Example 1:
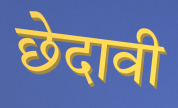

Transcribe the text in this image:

छेदावी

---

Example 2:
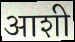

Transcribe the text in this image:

आशी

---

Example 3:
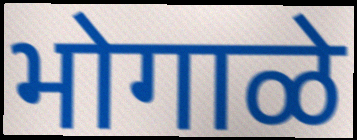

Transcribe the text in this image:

भोगाळे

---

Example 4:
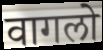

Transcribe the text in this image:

वागलो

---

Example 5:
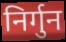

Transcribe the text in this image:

निर्गुन